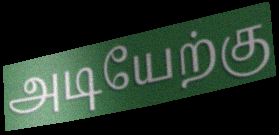
அடியேற்கு